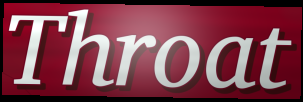
Throat